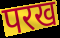
परख